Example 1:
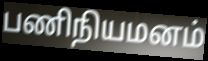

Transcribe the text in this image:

பணிநியமனம்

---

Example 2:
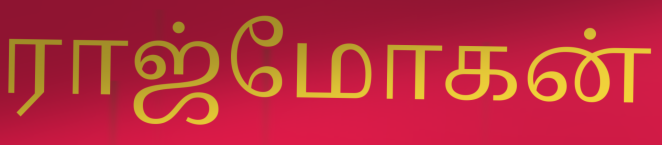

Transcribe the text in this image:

ராஜ்மோகன்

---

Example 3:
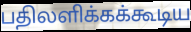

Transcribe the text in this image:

பதிலளிக்கக்கூடிய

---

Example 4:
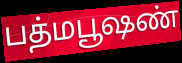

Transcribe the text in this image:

பத்மபூஷண்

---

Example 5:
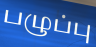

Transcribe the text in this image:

பழுப்பு